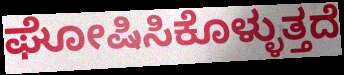
ಘೋಷಿಸಿಕೊಳ್ಳುತ್ತದೆ